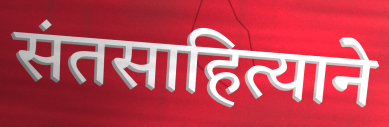
संतसाहित्याने